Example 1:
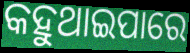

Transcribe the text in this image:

କହୁଥାଇପାରେ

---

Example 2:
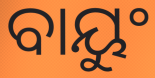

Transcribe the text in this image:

ବାୟୁଂ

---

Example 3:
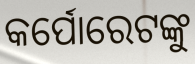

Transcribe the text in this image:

କର୍ପୋରେଟଙ୍କୁ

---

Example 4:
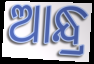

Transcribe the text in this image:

ଆନ୍ଧ୍ର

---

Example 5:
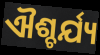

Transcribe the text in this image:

ଐଶ୍ଚର୍ଯ୍ୟ